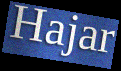
Hajar